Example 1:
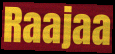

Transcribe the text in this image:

Raajaa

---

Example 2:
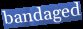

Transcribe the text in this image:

bandaged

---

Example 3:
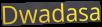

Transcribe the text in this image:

Dwadasa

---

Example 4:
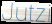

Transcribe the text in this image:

Jutzi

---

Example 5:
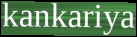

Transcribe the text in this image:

kankariya